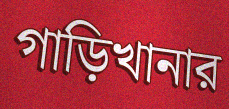
গাড়িখানার